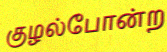
குழல்போன்ற